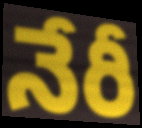
నేరీ